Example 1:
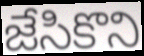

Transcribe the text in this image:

జేసికొని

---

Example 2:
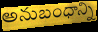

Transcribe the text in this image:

అనుబంధాన్ని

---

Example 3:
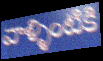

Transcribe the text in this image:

వాళ్ళింటికి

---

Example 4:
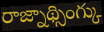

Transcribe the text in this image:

రాజ్నాథ్సింగ్కు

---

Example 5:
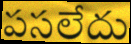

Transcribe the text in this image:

పసలేదు